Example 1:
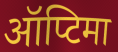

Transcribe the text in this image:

ऑप्टिमा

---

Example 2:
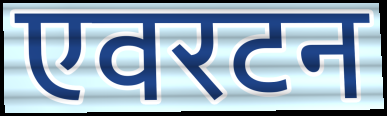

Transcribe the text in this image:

एवरटन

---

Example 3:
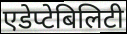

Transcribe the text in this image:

एडेप्टेबिलिटी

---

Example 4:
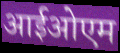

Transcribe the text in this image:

आईओएम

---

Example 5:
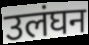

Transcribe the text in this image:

उलंघन